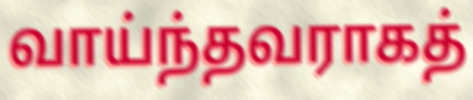
வாய்ந்தவராகத்